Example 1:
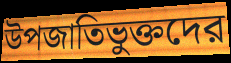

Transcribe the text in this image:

উপজাতিভুক্তদের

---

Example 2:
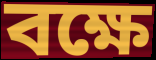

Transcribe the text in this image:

বক্ষে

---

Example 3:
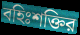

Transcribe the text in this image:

বহিঃশক্তির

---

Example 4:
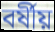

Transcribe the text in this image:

বর্ষীয়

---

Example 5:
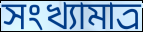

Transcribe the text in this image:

সংখ্যামাত্র